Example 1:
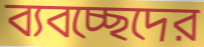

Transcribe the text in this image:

ব্যবচ্ছেদের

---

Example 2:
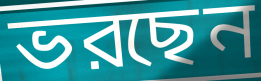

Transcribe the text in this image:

ভরছেন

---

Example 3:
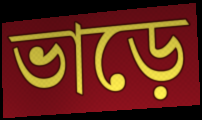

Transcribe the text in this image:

ভাড়ে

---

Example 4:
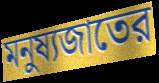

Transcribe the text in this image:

মনুষ্যজাতের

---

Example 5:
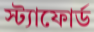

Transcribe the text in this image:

স্ট্যাফোর্ড